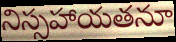
నిస్సహాయతనూ